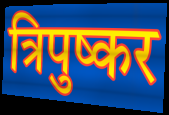
त्रिपुष्कर